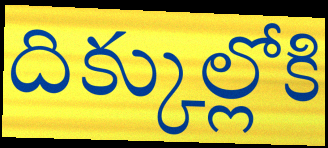
దిక్కుల్లోకి